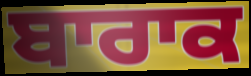
ਬਾਰਾਕ